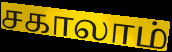
சகாலாம்